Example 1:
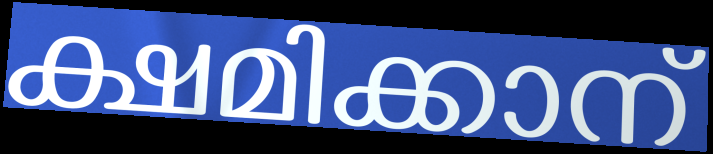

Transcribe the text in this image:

ക്ഷമിക്കാന്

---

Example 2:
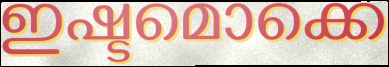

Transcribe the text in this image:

ഇഷ്ടമൊക്കെ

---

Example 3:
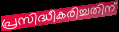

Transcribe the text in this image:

പ്രസിദ്ധീകരിച്ചതിന്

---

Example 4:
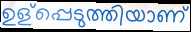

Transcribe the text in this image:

ഉള്പ്പെടുത്തിയാണ്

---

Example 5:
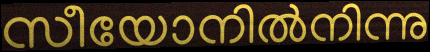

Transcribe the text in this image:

സീയോനിൽനിന്നു